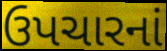
ઉપચારનાં